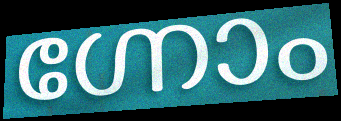
ഗ്നോം